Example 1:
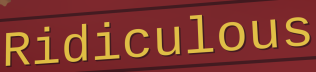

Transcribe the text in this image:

Ridiculous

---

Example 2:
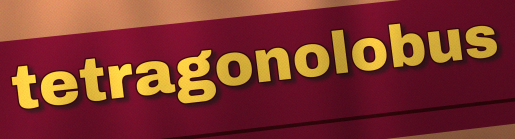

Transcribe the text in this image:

tetragonolobus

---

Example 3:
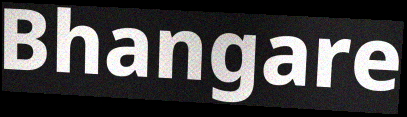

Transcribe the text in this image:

Bhangare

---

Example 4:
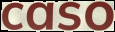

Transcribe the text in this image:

caso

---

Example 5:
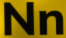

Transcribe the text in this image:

Nn